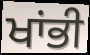
ਖਾਂਭੀ